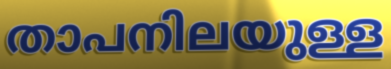
താപനിലയുള്ള